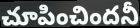
చూపించిందనీ